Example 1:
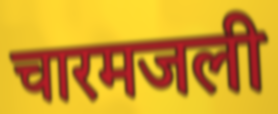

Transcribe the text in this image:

चारमजली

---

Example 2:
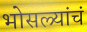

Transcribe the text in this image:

भोसल्यांचं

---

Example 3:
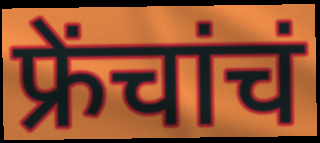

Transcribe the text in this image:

फ्रेंचांचं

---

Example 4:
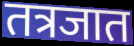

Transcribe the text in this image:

तत्रजात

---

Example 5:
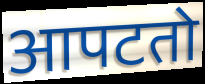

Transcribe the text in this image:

आपटतो